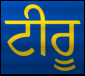
ਟੀਰੂ